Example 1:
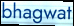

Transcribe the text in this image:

bhagwat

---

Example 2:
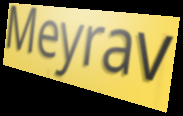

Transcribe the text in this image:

Meyrav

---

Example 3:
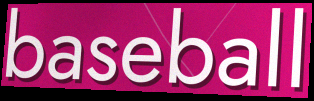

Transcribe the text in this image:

baseball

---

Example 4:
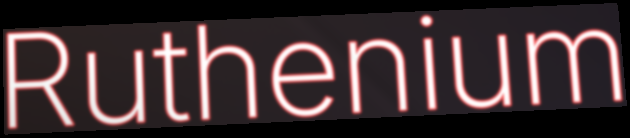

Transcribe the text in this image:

Ruthenium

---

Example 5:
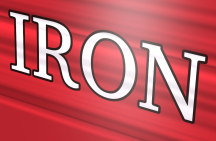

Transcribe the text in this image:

IRON